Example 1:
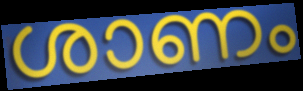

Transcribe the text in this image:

ശാണം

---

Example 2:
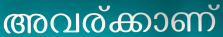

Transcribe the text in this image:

അവര്ക്കാണ്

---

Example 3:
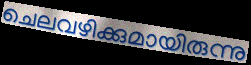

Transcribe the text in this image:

ചെലവഴിക്കുമായിരുന്നു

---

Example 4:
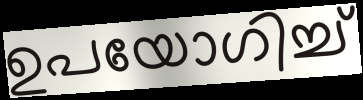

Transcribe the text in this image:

ഉപയോഗിച്ച്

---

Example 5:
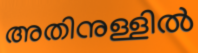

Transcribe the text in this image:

അതിനുള്ളിൽ